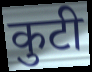
कुटी